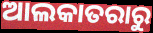
ଆଲକାତରାରୁ